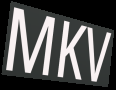
MKV